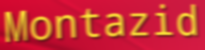
Montazid